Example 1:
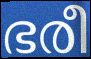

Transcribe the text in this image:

ഭരീ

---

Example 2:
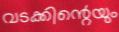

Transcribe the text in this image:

വടക്കിന്റെയും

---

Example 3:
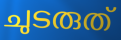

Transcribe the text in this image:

ചുടരുത്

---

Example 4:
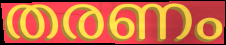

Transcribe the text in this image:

തരണം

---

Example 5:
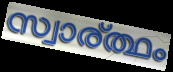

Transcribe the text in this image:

സ്വാര്ത്ഥം